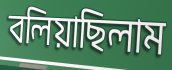
বলিয়াছিলাম